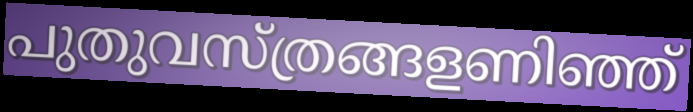
പുതുവസ്ത്രങ്ങളണിഞ്ഞ്